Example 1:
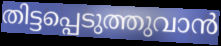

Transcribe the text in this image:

തിട്ടപ്പെടുത്തുവാൻ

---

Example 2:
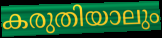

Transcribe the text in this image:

കരുതിയാലും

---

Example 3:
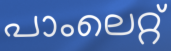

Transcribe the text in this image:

പാംലെറ്റ്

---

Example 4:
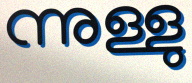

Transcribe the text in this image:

ന്നുള്ളു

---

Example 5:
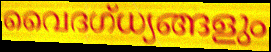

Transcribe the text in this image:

വൈദഗ്ധ്യങ്ങളും